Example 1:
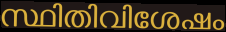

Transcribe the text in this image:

സ്ഥിതിവിശേഷം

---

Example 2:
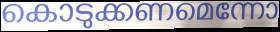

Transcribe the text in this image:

കൊടുക്കണമെന്നോ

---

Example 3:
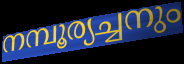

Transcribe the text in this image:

നമ്പൂര്യച്ചനും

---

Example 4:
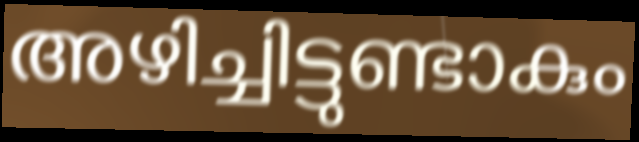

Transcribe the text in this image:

അഴിച്ചിട്ടുണ്ടാകും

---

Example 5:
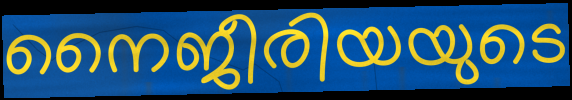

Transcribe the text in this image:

നൈജീരിയയുടെ